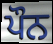
ਪੌਨ